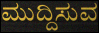
ಮುದ್ದಿಸುವ